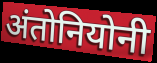
अंतोनियोनी